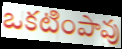
ఒకటింపావు